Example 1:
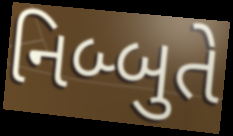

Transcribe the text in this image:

નિબ્બુતે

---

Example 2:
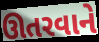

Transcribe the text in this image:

ઊતરવાને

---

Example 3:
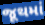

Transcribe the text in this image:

જૂથમાં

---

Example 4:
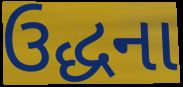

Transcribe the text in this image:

ઉદ્ધના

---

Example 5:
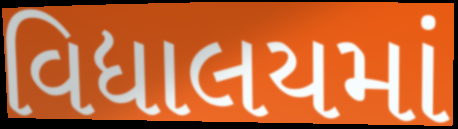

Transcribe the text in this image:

વિદ્યાલયમાં